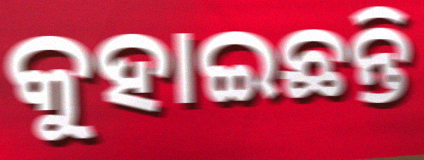
କୁହାଇଛନ୍ତି